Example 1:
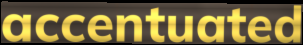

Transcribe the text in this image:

accentuated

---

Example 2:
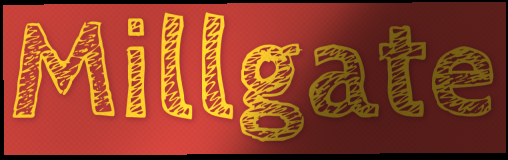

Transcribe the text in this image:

Millgate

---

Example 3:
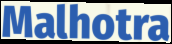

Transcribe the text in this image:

Malhotra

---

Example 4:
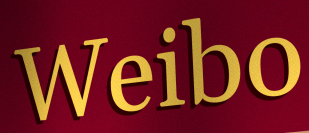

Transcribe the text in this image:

Weibo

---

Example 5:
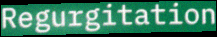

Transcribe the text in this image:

Regurgitation